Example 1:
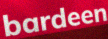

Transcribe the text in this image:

bardeen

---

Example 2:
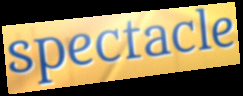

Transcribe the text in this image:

spectacle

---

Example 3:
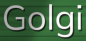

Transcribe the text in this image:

Golgi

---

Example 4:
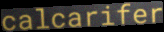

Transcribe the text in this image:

calcarifer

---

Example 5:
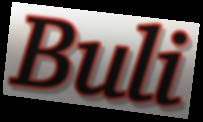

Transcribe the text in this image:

Buli